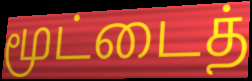
மூட்டைத்